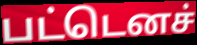
பட்டெனச்